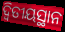
ଦ୍ୱିତୀୟସ୍ଥାନ